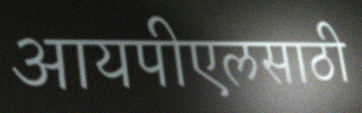
आयपीएलसाठी